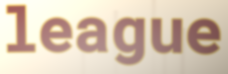
league